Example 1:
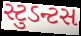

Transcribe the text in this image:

સ્ટુડન્ટસ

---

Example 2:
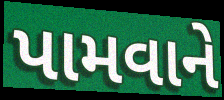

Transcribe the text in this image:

પામવાને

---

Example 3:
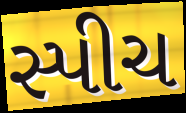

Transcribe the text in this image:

સ્પીચ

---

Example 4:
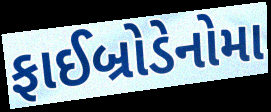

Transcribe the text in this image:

ફાઈબ્રોડેનોમા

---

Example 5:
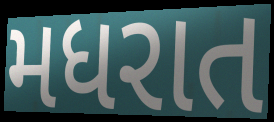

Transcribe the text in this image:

મધરાત